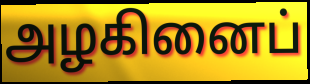
அழகினைப்